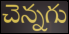
చెన్నగు